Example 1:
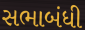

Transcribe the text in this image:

સભાબંધી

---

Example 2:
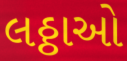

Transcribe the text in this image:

લઠ્ઠાઓ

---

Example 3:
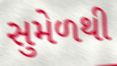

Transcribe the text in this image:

સુમેળથી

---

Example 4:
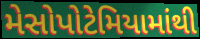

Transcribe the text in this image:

મેસોપોટેમિયામાંથી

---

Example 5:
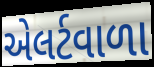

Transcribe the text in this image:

એલર્ટવાળા